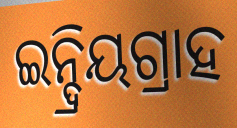
ଇନ୍ଦ୍ରିୟଗ୍ରାହ